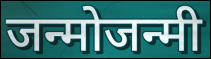
जन्मोजन्मी